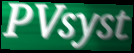
PVsyst